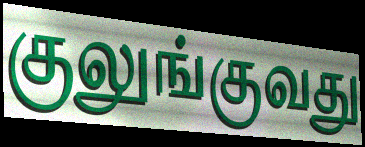
குலுங்குவது